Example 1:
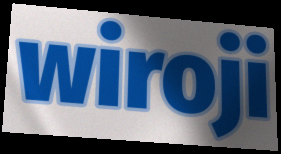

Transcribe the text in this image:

wiroji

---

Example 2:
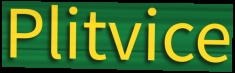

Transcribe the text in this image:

Plitvice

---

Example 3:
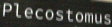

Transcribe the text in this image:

Plecostomus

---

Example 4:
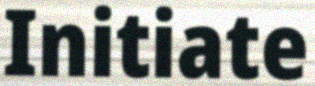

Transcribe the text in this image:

Initiate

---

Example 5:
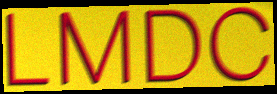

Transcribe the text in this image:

LMDC